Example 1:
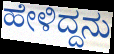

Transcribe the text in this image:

ಹೇಳಿದ್ದನು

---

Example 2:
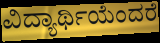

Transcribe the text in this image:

ವಿದ್ಯಾರ್ಥಿಯೆಂದರೆ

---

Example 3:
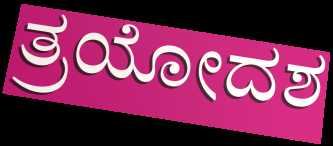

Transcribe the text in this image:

ತ್ರಯೋದಶ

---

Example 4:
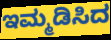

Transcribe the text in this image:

ಇಮ್ಮಡಿಸಿದ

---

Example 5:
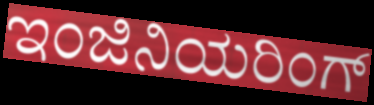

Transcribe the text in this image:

ಇಂಜಿನಿಯರಿಂಗ್